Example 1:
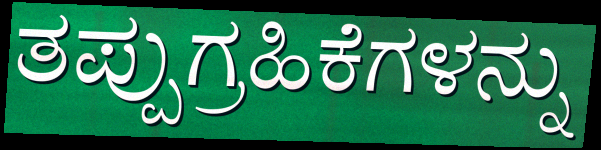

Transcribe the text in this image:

ತಪ್ಪುಗ್ರಹಿಕೆಗಳನ್ನು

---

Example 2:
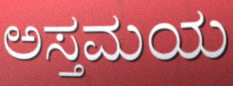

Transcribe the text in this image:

ಅಸ್ತಮಯ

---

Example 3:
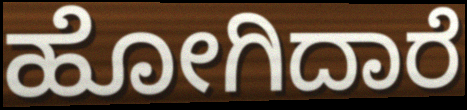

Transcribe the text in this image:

ಹೋಗಿದಾರೆ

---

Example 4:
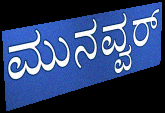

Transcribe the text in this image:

ಮುನವ್ವರ್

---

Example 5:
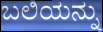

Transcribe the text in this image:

ಬಲಿಯನ್ನು